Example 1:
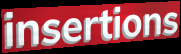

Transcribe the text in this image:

insertions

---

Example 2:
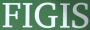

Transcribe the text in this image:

FIGIS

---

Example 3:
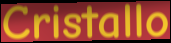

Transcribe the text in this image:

Cristallo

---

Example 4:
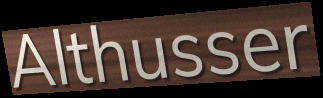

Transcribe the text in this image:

Althusser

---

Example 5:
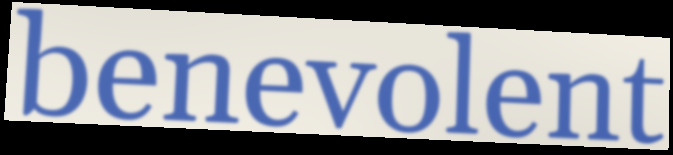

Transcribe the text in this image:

benevolent